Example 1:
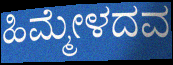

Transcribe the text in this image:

ಹಿಮ್ಮೇಳದವ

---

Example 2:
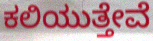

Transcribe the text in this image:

ಕಲಿಯುತ್ತೇವೆ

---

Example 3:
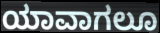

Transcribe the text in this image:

ಯಾವಾಗಲೂ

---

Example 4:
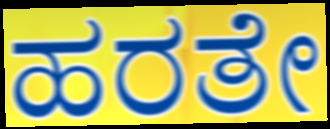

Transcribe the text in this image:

ಹರತೇ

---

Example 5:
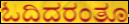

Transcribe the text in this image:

ಓದಿದರಂತೂ